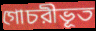
গোচরীভূত